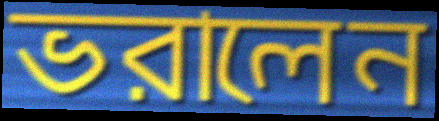
ভরালেন